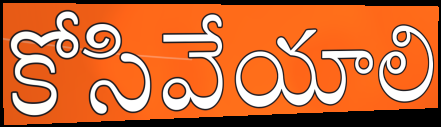
కోసివేయాలి